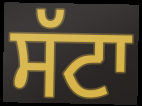
ਸੱਟਾ